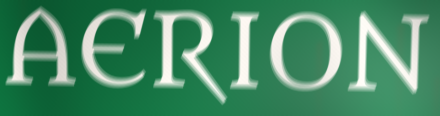
AERION